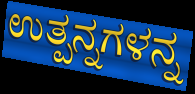
ಉತ್ಪನ್ನಗಳನ್ನ